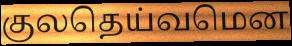
குலதெய்வமென